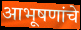
आभूषणांचे